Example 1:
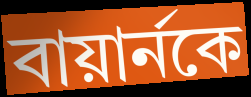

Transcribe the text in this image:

বায়ার্নকে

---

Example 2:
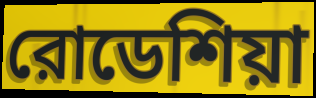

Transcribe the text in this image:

রোডেশিয়া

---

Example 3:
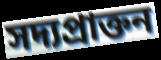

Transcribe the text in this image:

সদ্যপ্রাক্তন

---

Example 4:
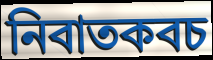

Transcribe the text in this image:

নিবাতকবচ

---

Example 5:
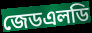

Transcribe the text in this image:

জেডএলডি